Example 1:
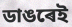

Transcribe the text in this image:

ডাঙৰেই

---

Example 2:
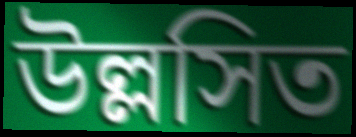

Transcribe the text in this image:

উল্লসিত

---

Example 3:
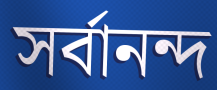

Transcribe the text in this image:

সৰ্বানন্দ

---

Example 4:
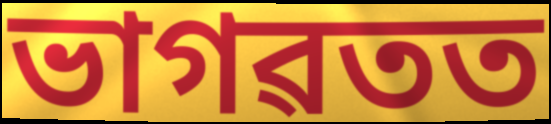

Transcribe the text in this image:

ভাগৱতত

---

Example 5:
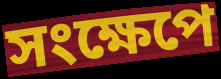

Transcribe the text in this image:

সংক্ষেপে